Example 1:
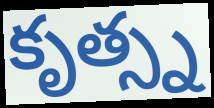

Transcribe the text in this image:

కృత్స్న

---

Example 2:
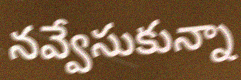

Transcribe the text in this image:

నవ్వేసుకున్నా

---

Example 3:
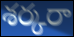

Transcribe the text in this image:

శర్కరా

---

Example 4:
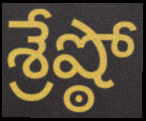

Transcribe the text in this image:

శ్రేష్ఠో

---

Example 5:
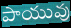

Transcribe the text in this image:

పాయువు